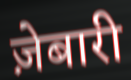
ज़ेबारी